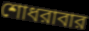
শোধরাবার